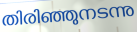
തിരിഞ്ഞുനടന്നു